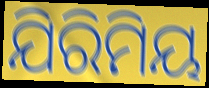
ଯିରିମିୟ